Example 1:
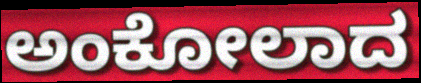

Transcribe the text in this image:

ಅಂಕೋಲಾದ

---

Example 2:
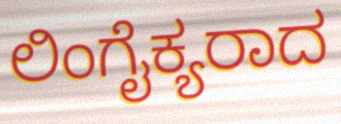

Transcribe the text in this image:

ಲಿಂಗೈಕ್ಯರಾದ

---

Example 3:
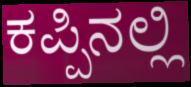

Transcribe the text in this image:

ಕಪ್ಪಿನಲ್ಲಿ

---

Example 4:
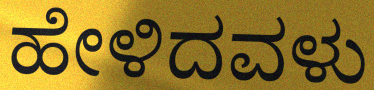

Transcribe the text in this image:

ಹೇಳಿದವಳು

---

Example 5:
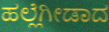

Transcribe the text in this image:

ಹಲ್ಲೆಗೀಡಾದ